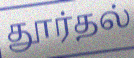
தூர்தல்